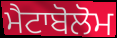
ਮੈਟਾਬੋਲੋਮ